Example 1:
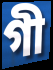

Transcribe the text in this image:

গী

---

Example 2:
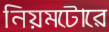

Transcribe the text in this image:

নিয়মটোৱে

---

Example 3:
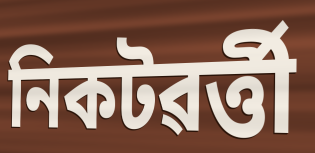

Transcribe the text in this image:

নিকটৱৰ্ত্তী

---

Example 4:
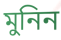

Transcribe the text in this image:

মুনিন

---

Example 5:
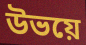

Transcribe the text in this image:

উভয়ে